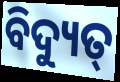
ବିଦ୍ୟୁତ୍